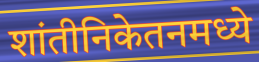
शांतीनिकेतनमध्ये